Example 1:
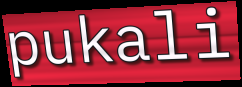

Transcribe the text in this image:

pukali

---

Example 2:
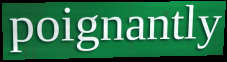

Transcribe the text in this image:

poignantly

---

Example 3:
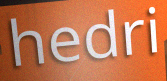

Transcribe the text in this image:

hedri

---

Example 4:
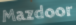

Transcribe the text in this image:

Mazdoor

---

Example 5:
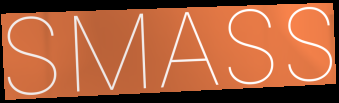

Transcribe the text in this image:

SMASS